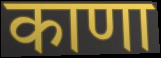
काणा